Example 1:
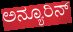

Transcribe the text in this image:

ಅನ್ಯೂರಿನ್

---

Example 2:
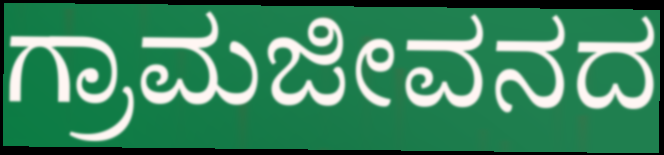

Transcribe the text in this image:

ಗ್ರಾಮಜೀವನದ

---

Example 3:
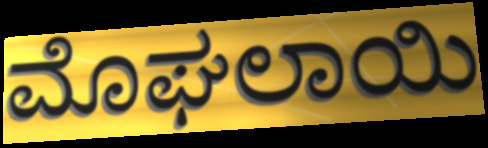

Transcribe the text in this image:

ಮೊಘಲಾಯಿ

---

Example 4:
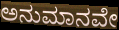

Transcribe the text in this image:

ಅನುಮಾನವೇ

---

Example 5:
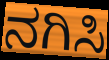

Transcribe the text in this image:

ನಗಿಸಿ